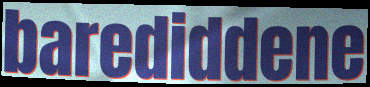
barediddene